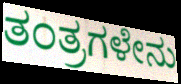
ತಂತ್ರಗಳೇನು